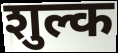
शुल्क